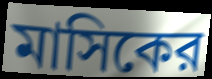
মাসিকের